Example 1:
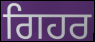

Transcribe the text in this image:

ਗਿਹਰ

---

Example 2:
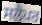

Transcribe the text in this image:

ਸਲੈਪਰ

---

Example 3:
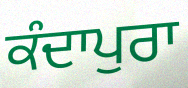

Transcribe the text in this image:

ਕੰਦਾਪੁਰਾ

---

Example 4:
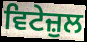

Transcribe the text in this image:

ਵਿਟੇਜ਼ੁਲ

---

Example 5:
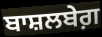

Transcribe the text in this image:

ਬਾਸ਼ਲਬੇਗ਼